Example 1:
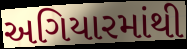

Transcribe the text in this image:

અગિયારમાંથી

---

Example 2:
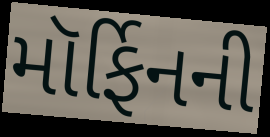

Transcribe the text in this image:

મૉર્ફિનની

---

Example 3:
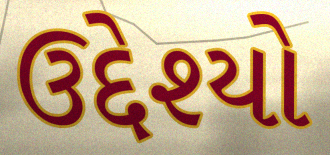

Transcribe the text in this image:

ઉદ્દેશ્યો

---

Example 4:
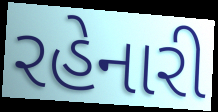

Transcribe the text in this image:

રહેનારી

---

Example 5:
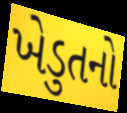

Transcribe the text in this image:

ખેડુતનો